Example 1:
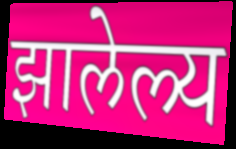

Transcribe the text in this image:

झालेल्य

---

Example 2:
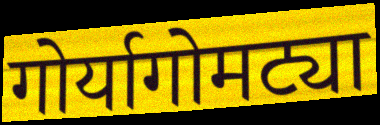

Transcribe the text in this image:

गोर्यागोमट्या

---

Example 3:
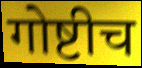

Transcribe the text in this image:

गोष्टीच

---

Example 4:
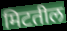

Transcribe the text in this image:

मिटतील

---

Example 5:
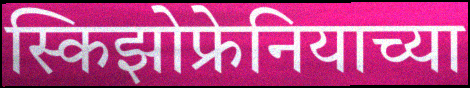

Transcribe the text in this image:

स्किझोफ्रेनियाच्या